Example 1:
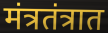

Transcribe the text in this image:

मंत्रतंत्रात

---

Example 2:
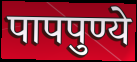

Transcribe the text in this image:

पापपुण्ये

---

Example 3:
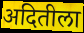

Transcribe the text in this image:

अदितीला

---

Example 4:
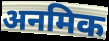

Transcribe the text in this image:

अनमिक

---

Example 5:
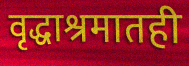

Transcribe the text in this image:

वृद्धाश्रमातही